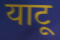
याटू